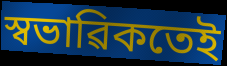
স্বভাৱিকতেই